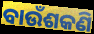
ବାଉଁଶକଣି